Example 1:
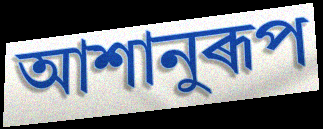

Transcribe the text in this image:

আশানুৰূপ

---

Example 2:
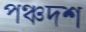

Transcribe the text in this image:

পঞ্চদশ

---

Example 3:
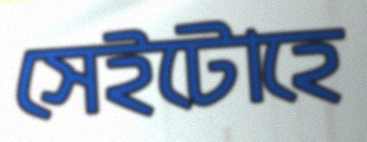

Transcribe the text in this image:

সেইটোহে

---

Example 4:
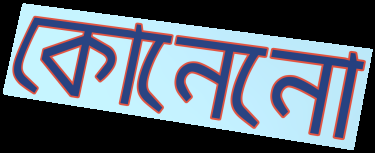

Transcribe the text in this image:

কোনেনো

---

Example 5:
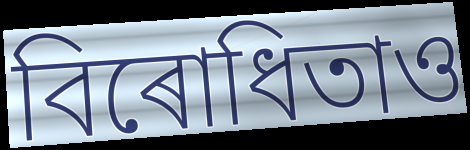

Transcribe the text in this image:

বিৰোধিতাও